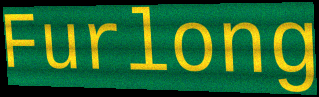
Furlong